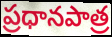
ప్రధానపాత్ర